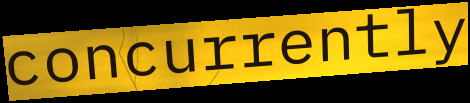
concurrently